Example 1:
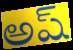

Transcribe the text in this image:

అష్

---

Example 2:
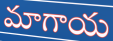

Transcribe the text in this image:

మాగాయ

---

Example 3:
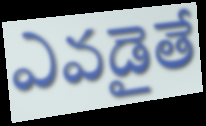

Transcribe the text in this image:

ఎవడైతే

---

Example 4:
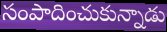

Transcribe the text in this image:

సంపాదించుకున్నాడు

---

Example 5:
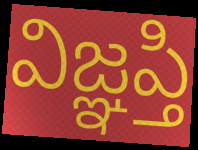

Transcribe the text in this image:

విజ్ఞప్తి